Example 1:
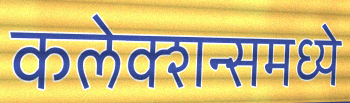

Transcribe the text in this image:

कलेक्शन्समध्ये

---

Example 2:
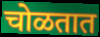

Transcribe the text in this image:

चोळतात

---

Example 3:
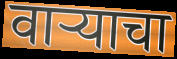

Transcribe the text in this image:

वाऱ्याचा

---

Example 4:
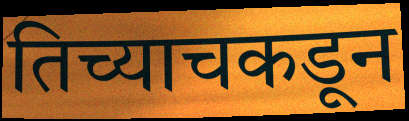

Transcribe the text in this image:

तिच्याचकडून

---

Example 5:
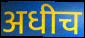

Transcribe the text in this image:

अधीच